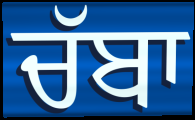
ਚੱਬਾ